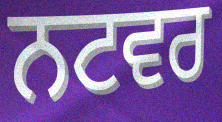
ਨਟਵਰ